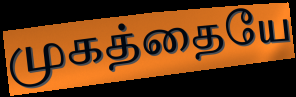
முகத்தையே